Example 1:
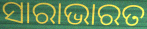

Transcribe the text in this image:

ସାରାଭାରତ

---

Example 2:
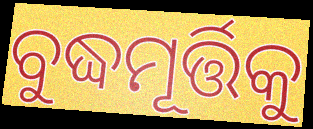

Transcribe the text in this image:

ବୁଦ୍ଧମୂର୍ତ୍ତିକୁ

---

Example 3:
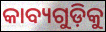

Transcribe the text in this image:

କାବ୍ୟଗୁଡ଼ିକୁ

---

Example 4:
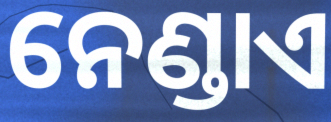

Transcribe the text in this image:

ନେଣ୍ଡାଏ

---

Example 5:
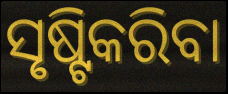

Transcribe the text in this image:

ସୃଷ୍ଟିକରିବା